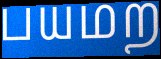
பயமற